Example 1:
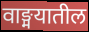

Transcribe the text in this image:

वाङ्मयातील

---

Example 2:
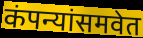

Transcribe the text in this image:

कंपन्यांसमवेत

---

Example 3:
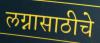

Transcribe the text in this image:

लग्नासाठीचे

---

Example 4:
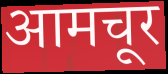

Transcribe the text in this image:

आमचूर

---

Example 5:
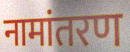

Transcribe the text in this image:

नामांतरण